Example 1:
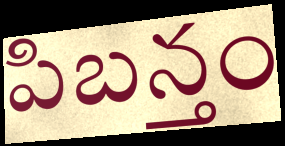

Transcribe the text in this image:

పిబన్తం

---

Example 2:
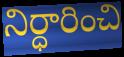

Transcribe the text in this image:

నిర్ధారించి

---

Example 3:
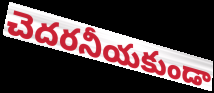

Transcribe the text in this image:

చెదరనీయకుండా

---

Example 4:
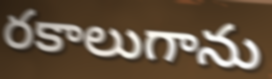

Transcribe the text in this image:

రకాలుగాను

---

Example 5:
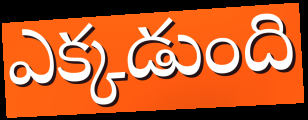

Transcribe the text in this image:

ఎక్కడుంది